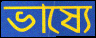
ভাষ্যে